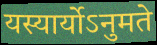
यस्यार्योऽनुमते